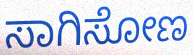
ಸಾಗಿಸೋಣ